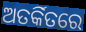
ଅତର୍କିତରେ